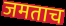
जमताच